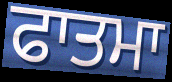
ਫਾਤਮਾ